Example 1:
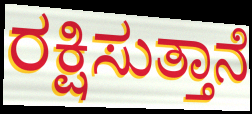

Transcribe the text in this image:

ರಕ್ಷಿಸುತ್ತಾನೆ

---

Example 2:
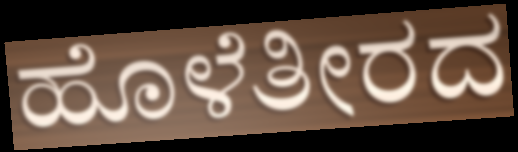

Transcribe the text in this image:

ಹೊಳೆತೀರದ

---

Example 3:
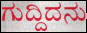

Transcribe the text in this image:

ಗುದ್ದಿದನು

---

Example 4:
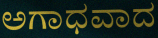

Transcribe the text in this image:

ಅಗಾಧವಾದ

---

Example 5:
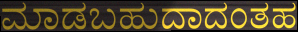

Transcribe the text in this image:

ಮಾಡಬಹುದಾದಂತಹ